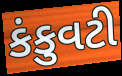
કંકુવટી